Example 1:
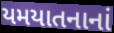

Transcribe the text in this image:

યમયાતનાનાં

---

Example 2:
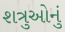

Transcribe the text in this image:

શત્રુઓનું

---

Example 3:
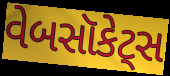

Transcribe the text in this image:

વેબસૉકેટ્સ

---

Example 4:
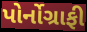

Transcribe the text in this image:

પોર્નોગ્રાફી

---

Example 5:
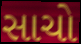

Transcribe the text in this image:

સાચો